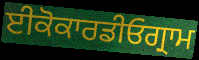
ਈਕੋਕਾਰਡੀਓਗ੍ਰਾਮ